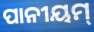
ପାନୀୟମ୍